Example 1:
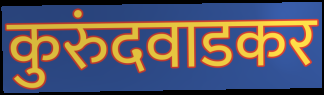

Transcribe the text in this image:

कुरुंदवाडकर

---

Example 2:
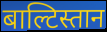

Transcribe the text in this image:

बाल्टिस्तान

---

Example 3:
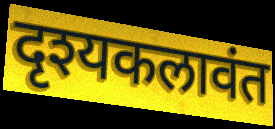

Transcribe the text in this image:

दृश्यकलावंत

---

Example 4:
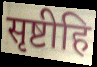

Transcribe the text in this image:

सृष्टीहि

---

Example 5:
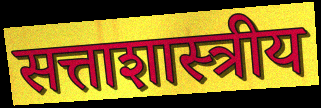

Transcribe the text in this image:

सत्ताशास्त्रीय